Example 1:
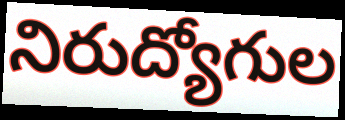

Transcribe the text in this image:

నిరుద్యోగుల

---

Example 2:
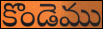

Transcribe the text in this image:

కొండెము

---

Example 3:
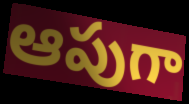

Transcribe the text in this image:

ఆపుగా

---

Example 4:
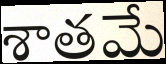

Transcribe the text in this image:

శాతమే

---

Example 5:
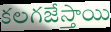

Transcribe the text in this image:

కలగజేస్తాయి